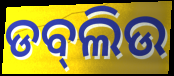
ଡବ୍‍ଲିଉ